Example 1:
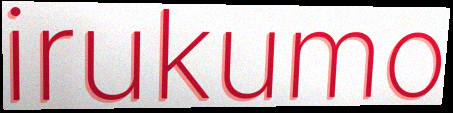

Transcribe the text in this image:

irukumo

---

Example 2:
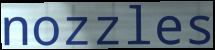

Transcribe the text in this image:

nozzles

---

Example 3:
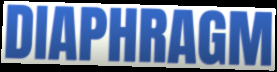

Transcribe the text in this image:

DIAPHRAGM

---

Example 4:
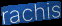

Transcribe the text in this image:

rachis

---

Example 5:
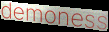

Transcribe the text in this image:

demoness